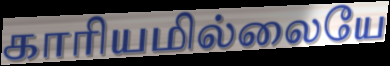
காரியமில்லையே